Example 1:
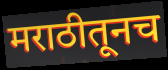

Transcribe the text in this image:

मराठीतूनच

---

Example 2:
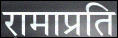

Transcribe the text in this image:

रामाप्रति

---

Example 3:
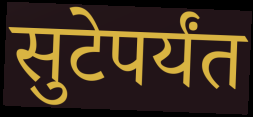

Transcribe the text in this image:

सुटेपर्यंत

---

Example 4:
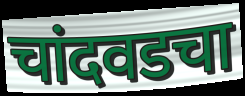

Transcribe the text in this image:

चांदवडचा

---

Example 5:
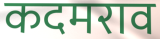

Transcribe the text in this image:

कदमराव